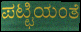
ಪಟ್ಟಿಯಂತೆ